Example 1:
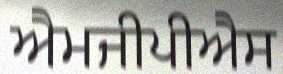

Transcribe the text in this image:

ਐਮਜੀਪੀਐਸ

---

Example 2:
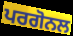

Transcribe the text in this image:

ਪਰਗੋਨਲ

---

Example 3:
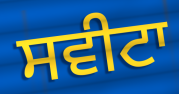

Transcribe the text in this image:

ਸਵੀਟਾ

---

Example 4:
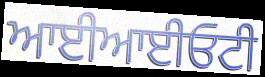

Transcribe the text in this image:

ਆਈਆਈਓਟੀ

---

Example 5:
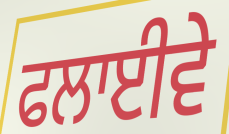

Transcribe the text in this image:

ਫਲਾਈਵੇ